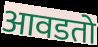
आवडतो